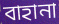
বাহানা